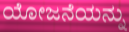
ಯೋಜನೆಯನ್ನು